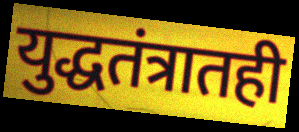
युद्धतंत्रातही